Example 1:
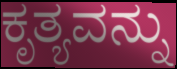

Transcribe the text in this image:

ಕೃತ್ಯವನ್ನು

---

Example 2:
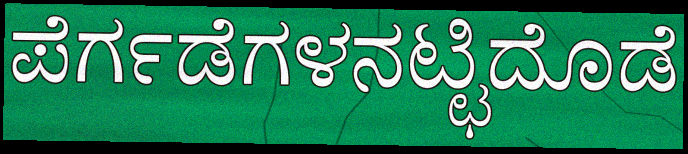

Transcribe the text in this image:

ಪೆರ್ಗಡೆಗಳನಟ್ಟಿದೊಡೆ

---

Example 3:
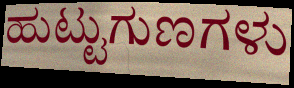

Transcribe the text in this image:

ಹುಟ್ಟುಗುಣಗಳು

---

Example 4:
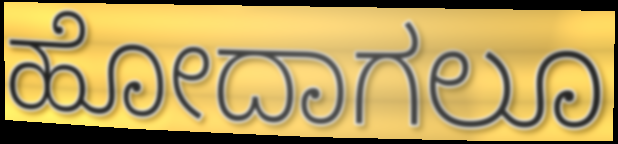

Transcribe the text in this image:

ಹೋದಾಗಲೂ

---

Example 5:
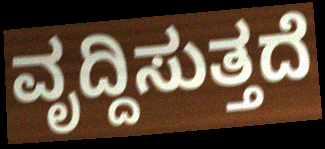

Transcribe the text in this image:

ವೃದ್ದಿಸುತ್ತದೆ